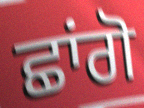
ਛਾਂਗੋ